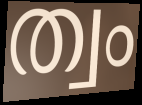
ത്വം